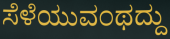
ಸೆಳೆಯುವಂಥದ್ದು